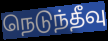
நெடுந்தீவு